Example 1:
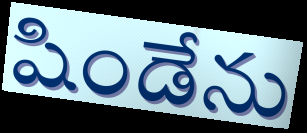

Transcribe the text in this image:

షిండేను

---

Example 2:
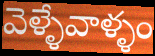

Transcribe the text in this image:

వెళ్ళేవాళ్ళం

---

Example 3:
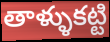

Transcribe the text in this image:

తాళ్ళుకట్టి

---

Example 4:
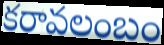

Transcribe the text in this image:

కరావలంబం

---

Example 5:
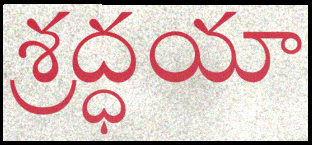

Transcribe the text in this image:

శ్రద్ధయా